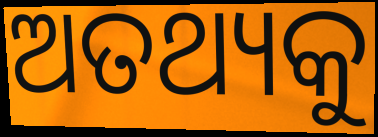
ଅତଥ୍ୟକୁ